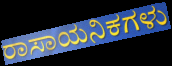
ರಾಸಾಯನಿಕಗಳು